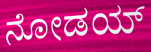
ನೋಡಯ್